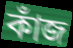
কাঁজ